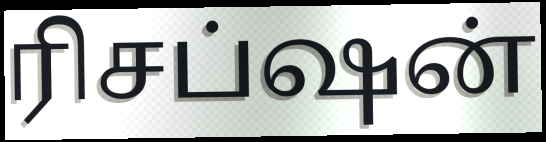
ரிசப்ஷன்